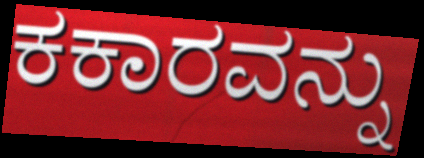
ಕಕಾರವನ್ನು